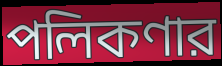
পলিকণার